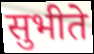
सुभीते